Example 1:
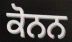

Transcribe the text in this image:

ਕੋਨਨ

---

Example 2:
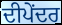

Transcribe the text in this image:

ਦੀਪੇਂਦਰ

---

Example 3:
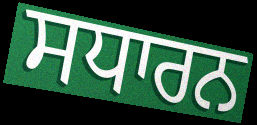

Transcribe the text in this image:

ਸਧਾਰਨ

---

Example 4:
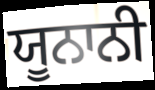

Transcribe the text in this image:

ਯੂਨਾਨੀ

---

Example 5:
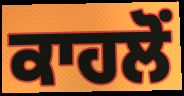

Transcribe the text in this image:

ਕਾਹਲੋਂ